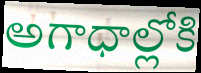
అగాధాల్లోకి